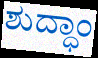
ಶುದ್ಧಾಂ